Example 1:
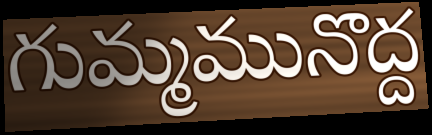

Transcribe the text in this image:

గుమ్మమునొద్ద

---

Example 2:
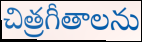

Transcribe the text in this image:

చిత్రగీతాలను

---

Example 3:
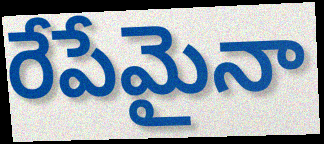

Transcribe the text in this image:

రేపేమైనా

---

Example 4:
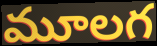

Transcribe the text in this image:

మూలగ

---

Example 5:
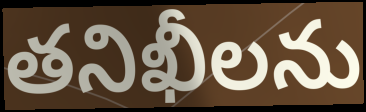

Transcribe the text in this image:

తనిఖీలను